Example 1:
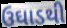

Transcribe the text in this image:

ઉઘાડથી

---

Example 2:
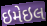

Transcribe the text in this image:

ઇમેઇલ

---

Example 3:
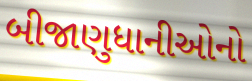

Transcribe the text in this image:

બીજાણુધાનીઓનો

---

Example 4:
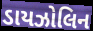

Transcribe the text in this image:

ડાયઝોલિન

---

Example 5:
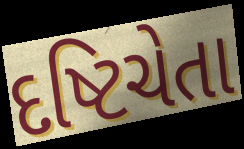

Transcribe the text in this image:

દષ્ટિચેતા